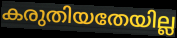
കരുതിയതേയില്ല